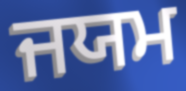
ਜਯਮ